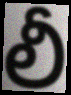
లీ